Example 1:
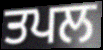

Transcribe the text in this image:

ਤਪਲ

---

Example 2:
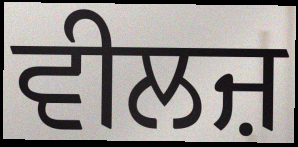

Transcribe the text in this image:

ਵੀਲਜ਼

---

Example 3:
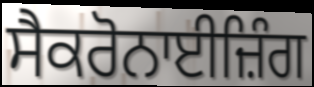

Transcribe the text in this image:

ਸੈਕਰੋਨਾਈਜ਼ਿੰਗ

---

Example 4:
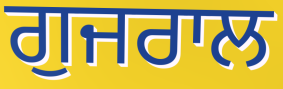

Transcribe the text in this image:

ਗੁਜਰਾਲ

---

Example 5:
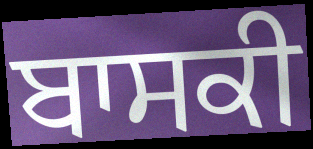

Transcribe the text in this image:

ਬਾਸਕੀ